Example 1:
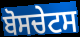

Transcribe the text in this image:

ਬੋਸਚੇਟਸ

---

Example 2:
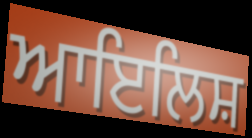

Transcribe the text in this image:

ਆਇਲਿਸ਼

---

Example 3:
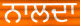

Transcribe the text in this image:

ਨਾਲਦਾ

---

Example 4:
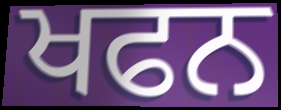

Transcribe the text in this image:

ਖਫਨ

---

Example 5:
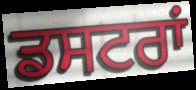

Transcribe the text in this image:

ਡਸਟਰਾਂ